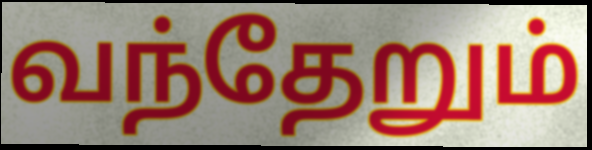
வந்தேறும்